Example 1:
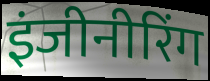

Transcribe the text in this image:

इंजीनीरिंग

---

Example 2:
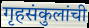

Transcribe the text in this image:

गृहसंकुलांची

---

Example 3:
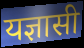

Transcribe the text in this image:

यज्ञासी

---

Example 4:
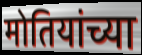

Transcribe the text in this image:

मोतियांच्या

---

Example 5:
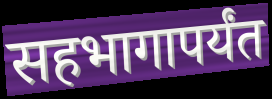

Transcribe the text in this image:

सहभागापर्यंत